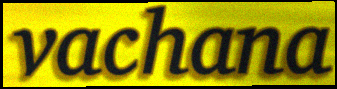
vachana